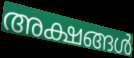
അക്ഷങ്ങൾ